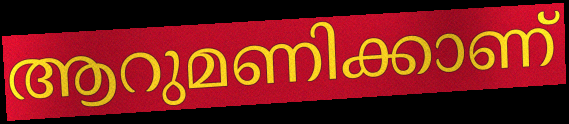
ആറുമണിക്കാണ്